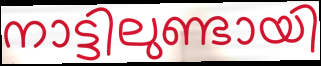
നാട്ടിലുണ്ടായി